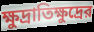
ক্ষুদ্রাতিক্ষুদ্রের